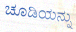
ಚೂಡಿಯನ್ನು